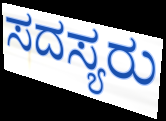
ಸದಸ್ಯರು